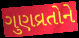
ગુણવ્રતોને